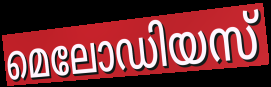
മെലോഡിയസ്